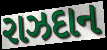
રાઝદાન